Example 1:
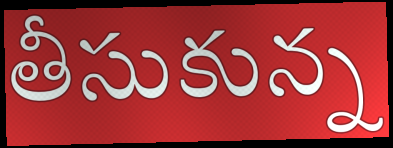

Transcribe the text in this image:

తీసుకున్న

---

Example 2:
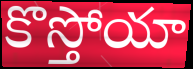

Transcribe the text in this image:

కొస్తోయా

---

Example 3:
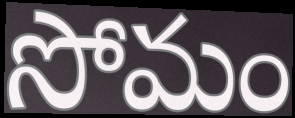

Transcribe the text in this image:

సోమం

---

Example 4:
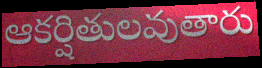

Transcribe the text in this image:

ఆకర్షితులవుతారు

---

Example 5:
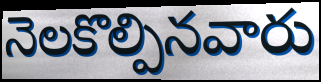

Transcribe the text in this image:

నెలకొల్పినవారు